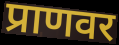
प्राणवर